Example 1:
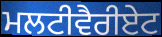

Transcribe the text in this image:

ਮਲਟੀਵੈਰੀਏਟ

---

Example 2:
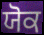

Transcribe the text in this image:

ਯੋਕ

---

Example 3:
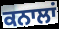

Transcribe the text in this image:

ਕਨਾਲਾਂ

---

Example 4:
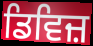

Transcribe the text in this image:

ਡਿਵਿਜ਼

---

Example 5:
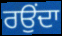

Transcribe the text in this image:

ਰਉਂਦਾ